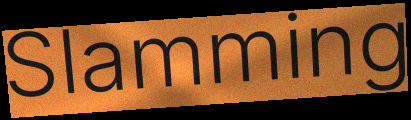
Slamming